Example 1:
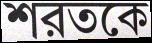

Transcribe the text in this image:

শরতকে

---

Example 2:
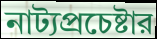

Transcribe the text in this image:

নাট্যপ্রচেষ্টার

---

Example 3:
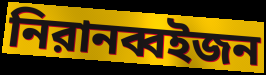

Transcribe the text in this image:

নিরানব্বইজন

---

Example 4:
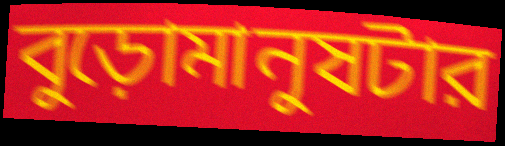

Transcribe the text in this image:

বুড়োমানুষটার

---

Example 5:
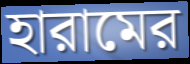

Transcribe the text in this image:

হারামের